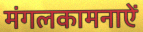
मंगलकामनाऐं